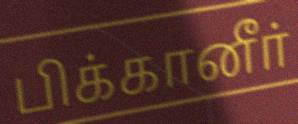
பிக்கானீர்